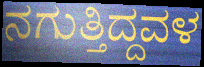
ನಗುತ್ತಿದ್ದವಳ